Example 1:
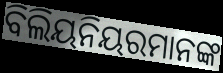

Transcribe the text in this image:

ବିଲିୟନିୟରମାନଙ୍କ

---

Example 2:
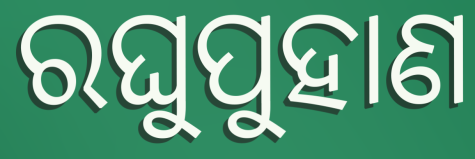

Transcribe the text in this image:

ରଘୁପୁହାଣ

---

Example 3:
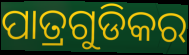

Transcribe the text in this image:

ପାତ୍ରଗୁଡିକର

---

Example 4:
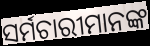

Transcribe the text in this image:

ସର୍ମଚାରୀମାନଙ୍କ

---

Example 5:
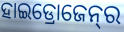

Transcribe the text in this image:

ହାଇଡ୍ରୋଜେନ୍‌ର